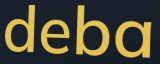
deba